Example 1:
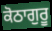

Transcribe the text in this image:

ਕੋਠਾਗੁਰੂ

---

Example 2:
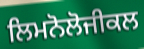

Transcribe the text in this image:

ਲਿਮਨੋਲੋਜੀਕਲ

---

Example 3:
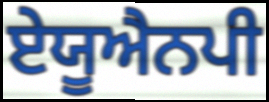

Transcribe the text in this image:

ਏਯੂਐਨਪੀ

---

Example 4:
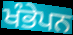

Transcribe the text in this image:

ਖੰਭੇਪਨ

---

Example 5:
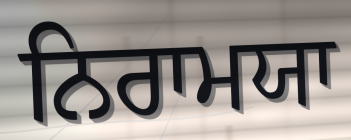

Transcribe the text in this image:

ਨਿਰਾਮਯਾ